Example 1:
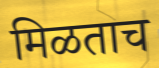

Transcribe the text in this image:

मिळताच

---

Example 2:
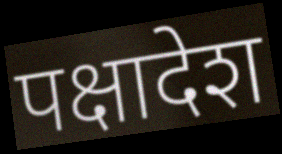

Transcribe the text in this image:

पक्षादेश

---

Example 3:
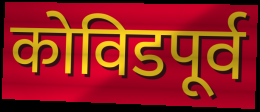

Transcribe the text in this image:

कोविडपूर्व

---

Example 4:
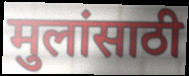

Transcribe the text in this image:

मुलांसाठी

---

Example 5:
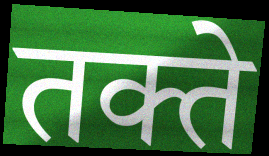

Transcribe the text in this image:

तक्ते